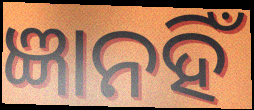
ଜ୍ଞାନହିଁ